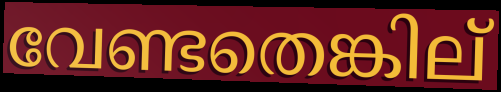
വേണ്ടതെങ്കില്